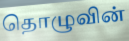
தொழுவின்